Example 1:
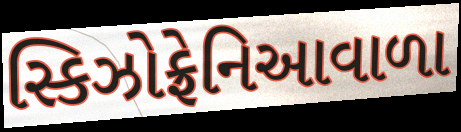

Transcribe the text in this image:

સ્કિઝોફ્રેનિઆવાળા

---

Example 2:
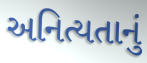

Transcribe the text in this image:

અનિત્યતાનું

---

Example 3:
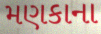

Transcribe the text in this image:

મણકાના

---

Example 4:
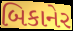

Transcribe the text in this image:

બિકાનેર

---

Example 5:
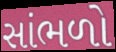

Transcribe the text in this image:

સાંભળો